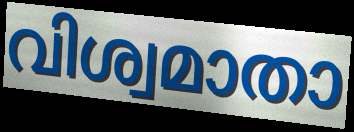
വിശ്വമാതാ